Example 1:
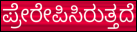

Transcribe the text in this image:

ಪ್ರೇರೇಪಿಸಿರುತ್ತದೆ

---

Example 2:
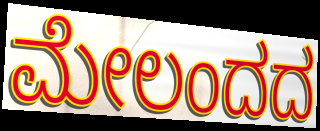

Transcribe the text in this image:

ಮೇಲಂದದ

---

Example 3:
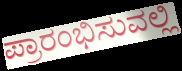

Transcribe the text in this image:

ಪ್ರಾರಂಭಿಸುವಲ್ಲಿ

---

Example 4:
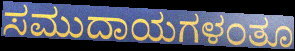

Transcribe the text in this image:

ಸಮುದಾಯಗಳಂತೂ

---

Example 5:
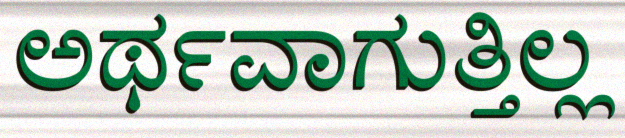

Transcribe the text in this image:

ಅರ್ಥವಾಗುತ್ತಿಲ್ಲ